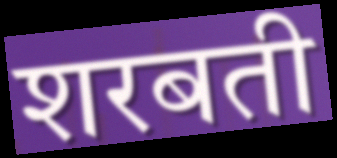
शरबती